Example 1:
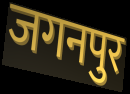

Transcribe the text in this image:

जगनपुर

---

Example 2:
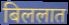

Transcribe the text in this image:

बिललात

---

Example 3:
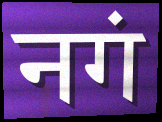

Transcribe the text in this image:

नगं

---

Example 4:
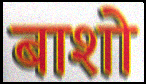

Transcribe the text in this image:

बाशो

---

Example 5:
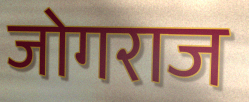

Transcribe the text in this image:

जोगराज